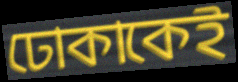
ঢোকাকেই